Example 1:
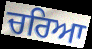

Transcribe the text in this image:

ਚਰਿਆ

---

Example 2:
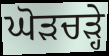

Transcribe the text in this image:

ਘੋੜਚੜ੍ਹੇ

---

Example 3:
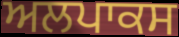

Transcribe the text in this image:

ਅਲਪਾਕਸ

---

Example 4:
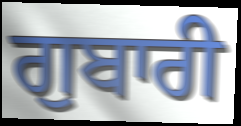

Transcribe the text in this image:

ਗੁਬਾਰੀ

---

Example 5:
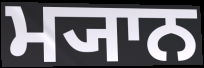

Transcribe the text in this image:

ਮ੍ਯਾਨ